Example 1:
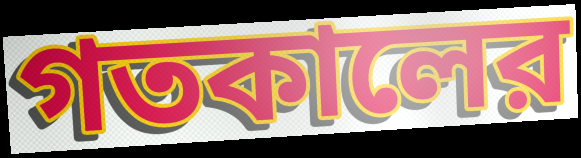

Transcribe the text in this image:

গতকালের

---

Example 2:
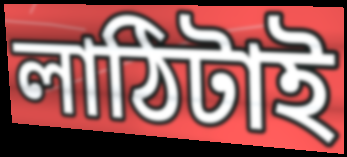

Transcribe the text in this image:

লাঠিটাই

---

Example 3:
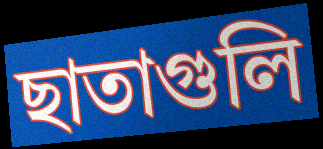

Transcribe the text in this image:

ছাতাগুলি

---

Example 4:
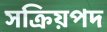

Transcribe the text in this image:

সক্রিয়পদ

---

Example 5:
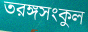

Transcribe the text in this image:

তরঙ্গসংকুল